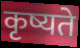
कृष्यते